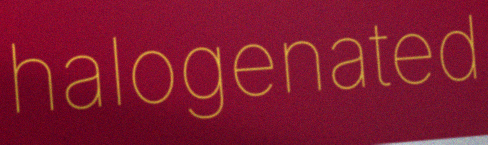
halogenated